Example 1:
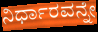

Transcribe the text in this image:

ನಿರ್ಧಾರವನ್ನೇ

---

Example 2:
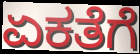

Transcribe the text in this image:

ಏಕತೆಗೆ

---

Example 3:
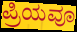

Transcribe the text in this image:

ಪ್ರಿಯವೂ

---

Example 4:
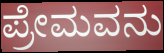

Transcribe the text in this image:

ಪ್ರೇಮವನು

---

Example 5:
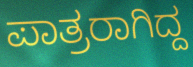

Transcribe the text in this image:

ಪಾತ್ರರಾಗಿದ್ದ